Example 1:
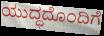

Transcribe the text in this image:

ಯುದ್ಧದೊಂದಿಗೆ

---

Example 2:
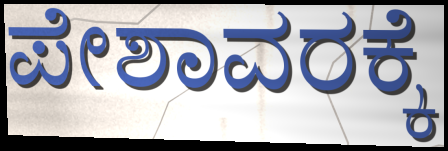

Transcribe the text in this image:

ಪೇಶಾವರಕ್ಕೆ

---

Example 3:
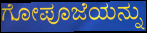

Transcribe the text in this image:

ಗೋಪೂಜೆಯನ್ನು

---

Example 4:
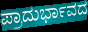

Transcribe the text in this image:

ಪ್ರಾದುರ್ಭಾವದ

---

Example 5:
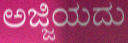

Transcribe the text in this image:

ಅಜ್ಜಿಯದು